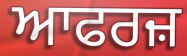
ਆਫਰਜ਼